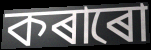
কৰাৰো